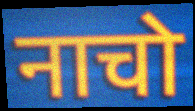
नाचो